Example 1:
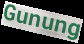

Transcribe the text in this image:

Gunung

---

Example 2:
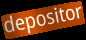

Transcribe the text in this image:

depositor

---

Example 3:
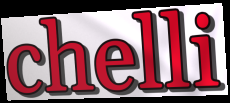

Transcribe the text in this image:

chelli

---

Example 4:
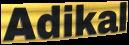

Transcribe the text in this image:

Adikal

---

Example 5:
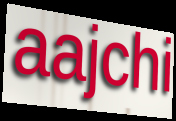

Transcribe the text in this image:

aajchi